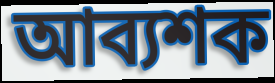
আব্যশক